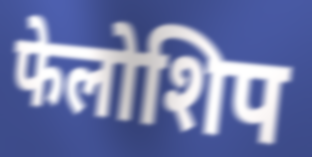
फेलोशिप